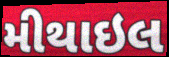
મીથાઇલ